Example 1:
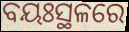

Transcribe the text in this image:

ବୟଃସ୍ଥଳରେ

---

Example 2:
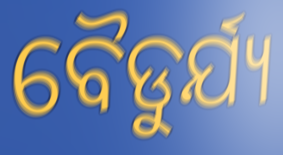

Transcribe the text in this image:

ବୈଡୁର୍ଯ୍ୟ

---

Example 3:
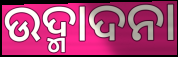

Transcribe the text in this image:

ଉଦ୍ମାଦନା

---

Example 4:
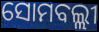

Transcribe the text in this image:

ସୋମବଲ୍ଲୀ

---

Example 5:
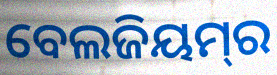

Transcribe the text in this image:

ବେଲଜିୟମ୍‌ର